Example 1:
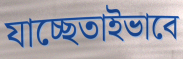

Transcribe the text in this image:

যাচ্ছেতাইভাবে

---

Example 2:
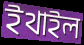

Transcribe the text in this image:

ইথাইল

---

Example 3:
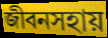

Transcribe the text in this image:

জীবনসহায়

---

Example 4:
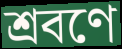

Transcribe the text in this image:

শ্রবণে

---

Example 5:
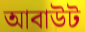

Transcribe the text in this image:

আবাউট